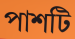
পাশটি